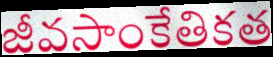
జీవసాంకేతికత